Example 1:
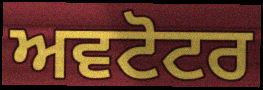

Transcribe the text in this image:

ਅਵਟੋਟਰ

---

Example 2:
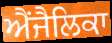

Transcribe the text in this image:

ਐਂਜੈਲਿਕਾ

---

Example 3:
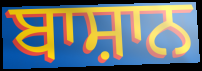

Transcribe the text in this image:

ਬਾਸ਼ਾਨ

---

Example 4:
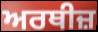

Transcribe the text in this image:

ਅਰਥੀਜ਼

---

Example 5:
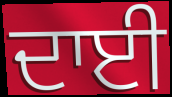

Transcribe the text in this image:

ਦਾਈ